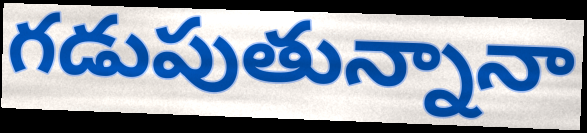
గడుపుతున్నానా